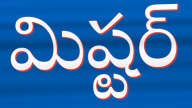
మిష్టర్